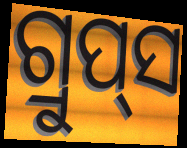
ଗ୍ରୁପ୍‌ସ